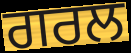
ਗਰਲ